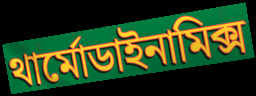
থার্মোডাইনামিক্স